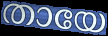
തായേ